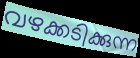
വഴക്കടിക്കുന്ന